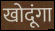
खोदूंगा